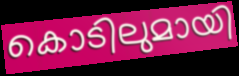
കൊടിലുമായി